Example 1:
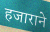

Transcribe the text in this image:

हजाराने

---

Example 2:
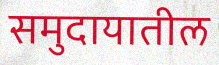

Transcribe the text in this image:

समुदायातील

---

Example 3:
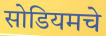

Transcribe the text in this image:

सोडियमचे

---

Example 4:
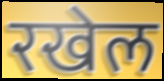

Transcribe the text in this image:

रखेल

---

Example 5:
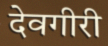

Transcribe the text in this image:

देवगीरी